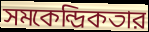
সমকেন্দ্রিকতার